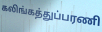
கலிங்கத்துப்பரணி